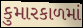
કુમારકાળમાં